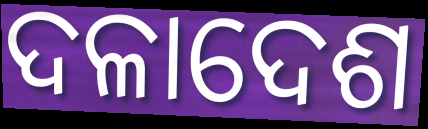
ଦଳାଦେଶ